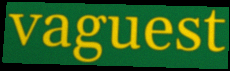
vaguest